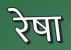
रेषा